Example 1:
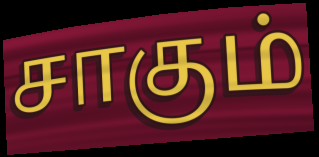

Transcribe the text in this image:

சாகும்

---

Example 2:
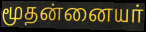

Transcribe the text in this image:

மூதன்னையர்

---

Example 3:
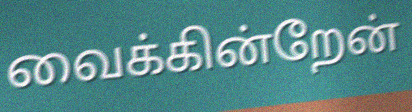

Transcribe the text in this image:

வைக்கின்றேன்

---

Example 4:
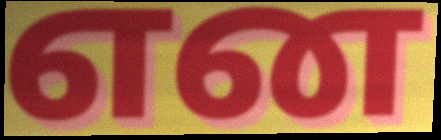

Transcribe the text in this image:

என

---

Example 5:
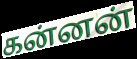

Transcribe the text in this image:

கன்னன்